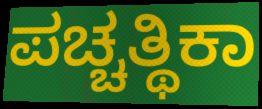
ಪಚ್ಚತ್ಥಿಕಾ